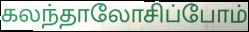
கலந்தாலோசிப்போம்